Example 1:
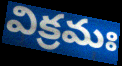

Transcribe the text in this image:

విక్రమః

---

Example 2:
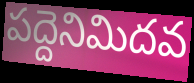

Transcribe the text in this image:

పద్దెనిమిదవ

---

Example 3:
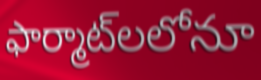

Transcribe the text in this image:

ఫార్మాట్‌లలోనూ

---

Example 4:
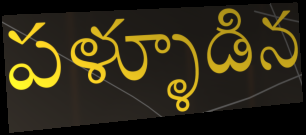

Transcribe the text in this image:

పళ్ళూడిన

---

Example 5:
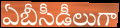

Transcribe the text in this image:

ఏబీసీడీలుగా